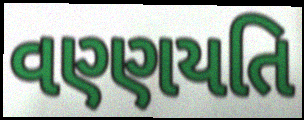
વણ્ણયતિ